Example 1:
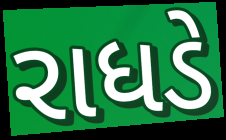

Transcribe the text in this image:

રાધડે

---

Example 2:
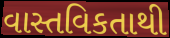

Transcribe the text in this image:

વાસ્તવિકતાથી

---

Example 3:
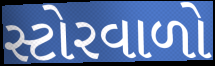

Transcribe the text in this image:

સ્ટોરવાળો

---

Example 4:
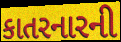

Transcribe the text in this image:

કાતરનારની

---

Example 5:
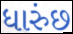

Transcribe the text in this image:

ધારુંછ